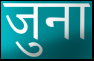
जुना